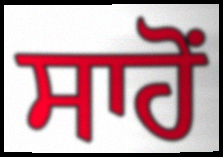
ਸਾਹੋਂ